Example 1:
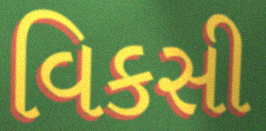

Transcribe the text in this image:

વિકસી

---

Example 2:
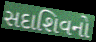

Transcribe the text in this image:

સદાશિવનો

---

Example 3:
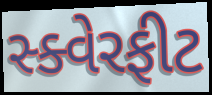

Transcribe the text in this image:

સ્ક્વેરફીટ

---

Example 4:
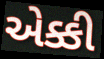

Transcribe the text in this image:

એક્કી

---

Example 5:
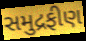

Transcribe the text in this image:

સમુદ્રફીણ